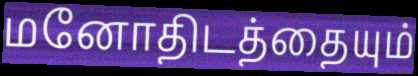
மனோதிடத்தையும்